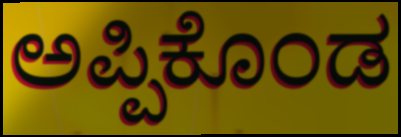
ಅಪ್ಪಿಕೊಂಡ